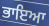
ਭਾਇਆ